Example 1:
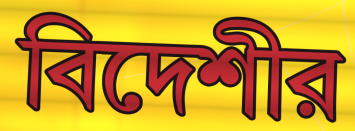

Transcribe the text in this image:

বিদেশীর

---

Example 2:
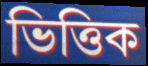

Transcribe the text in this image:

ভিত্তিক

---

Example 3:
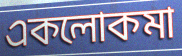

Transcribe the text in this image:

একলোকমা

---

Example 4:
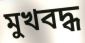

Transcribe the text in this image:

মুখবদ্ধ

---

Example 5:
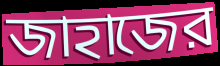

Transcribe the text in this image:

জাহাজের